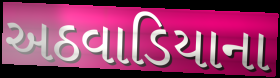
અઠવાડિયાના